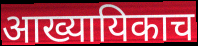
आख्यायिकाच